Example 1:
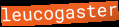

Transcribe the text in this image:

leucogaster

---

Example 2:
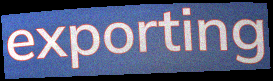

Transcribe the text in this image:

exporting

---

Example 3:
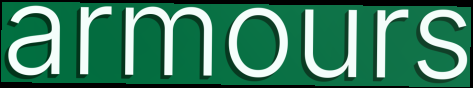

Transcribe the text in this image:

armours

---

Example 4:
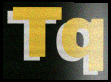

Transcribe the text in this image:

Tq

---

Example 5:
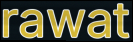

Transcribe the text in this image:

rawat